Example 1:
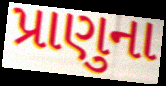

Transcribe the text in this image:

પ્રાણુના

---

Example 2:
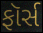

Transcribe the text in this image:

ફૉર્સ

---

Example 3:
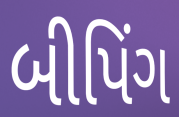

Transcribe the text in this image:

બીપિંગ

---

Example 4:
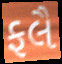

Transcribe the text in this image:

ફલૈ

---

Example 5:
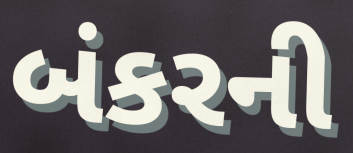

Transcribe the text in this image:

બંકરની